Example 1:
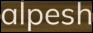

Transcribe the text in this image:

alpesh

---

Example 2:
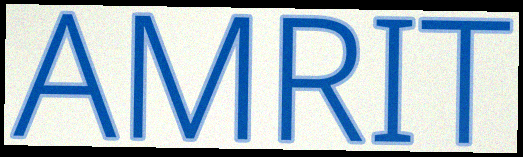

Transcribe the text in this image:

AMRIT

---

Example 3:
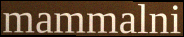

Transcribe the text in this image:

mammalni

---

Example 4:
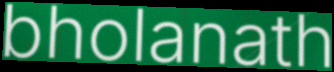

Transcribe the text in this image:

bholanath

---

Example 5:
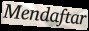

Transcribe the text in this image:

Mendaftar